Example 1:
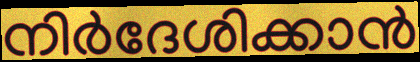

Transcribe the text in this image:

നിർദേശിക്കാൻ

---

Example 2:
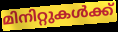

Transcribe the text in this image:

മിനിറ്റുകൾക്ക്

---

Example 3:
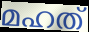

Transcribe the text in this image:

മഹത്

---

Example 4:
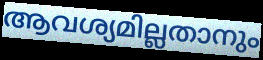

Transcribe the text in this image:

ആവശ്യമില്ലതാനും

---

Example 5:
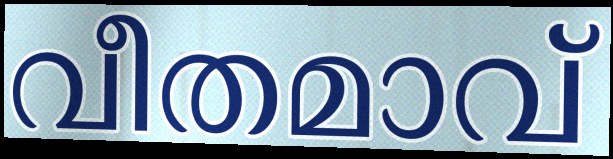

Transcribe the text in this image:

വീതമാവ്